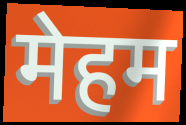
मेहम